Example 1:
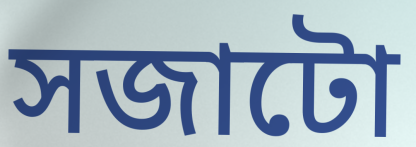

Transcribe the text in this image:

সজাটো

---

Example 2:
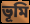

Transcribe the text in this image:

ভূমি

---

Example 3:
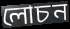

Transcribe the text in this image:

লোচন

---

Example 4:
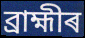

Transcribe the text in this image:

ব্ৰাহ্মীৰ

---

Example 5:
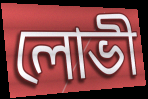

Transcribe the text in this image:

লোভী